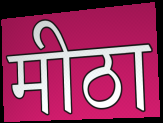
मीठा